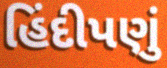
હિંદીપણું